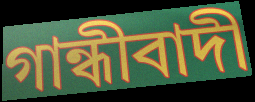
গান্ধীবাদী